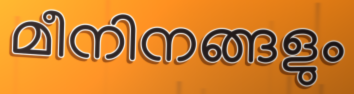
മീനിനങ്ങളും